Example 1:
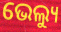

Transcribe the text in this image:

ଭେଲ୍ୟୁ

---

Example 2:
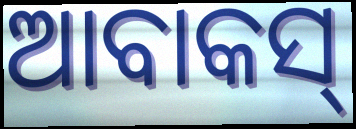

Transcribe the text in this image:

ଆବାକସ୍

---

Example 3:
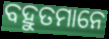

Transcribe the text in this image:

ବହୁତମାନେ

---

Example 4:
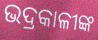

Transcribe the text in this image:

ଭଦ୍ରକାଳୀଙ୍କ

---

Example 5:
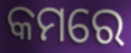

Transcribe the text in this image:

କମରେ